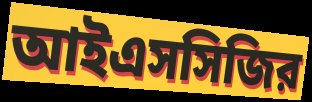
আইএসসিজির